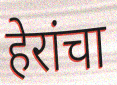
हेरांचा